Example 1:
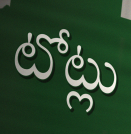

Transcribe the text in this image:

టోట్లు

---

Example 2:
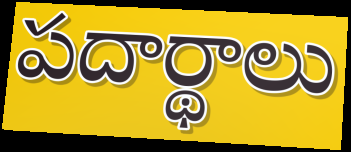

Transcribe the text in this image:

పదార్థాలు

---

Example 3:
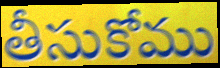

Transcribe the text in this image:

తీసుకోము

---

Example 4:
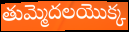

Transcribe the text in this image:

తుమ్మెదలయొక్క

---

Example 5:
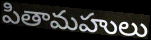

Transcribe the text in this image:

పితామహులు